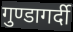
गुण्डागर्दी